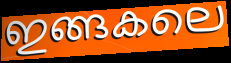
ഇങ്ങകലെ